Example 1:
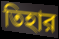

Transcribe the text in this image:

তিহার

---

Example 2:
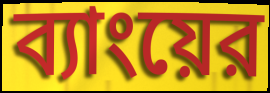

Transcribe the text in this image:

ব্যাংয়ের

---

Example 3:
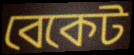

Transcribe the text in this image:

বেকেট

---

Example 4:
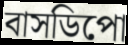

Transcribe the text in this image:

বাসডিপো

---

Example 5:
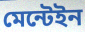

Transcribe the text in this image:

মেন্টেইন